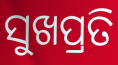
ସୁଖପ୍ରତି